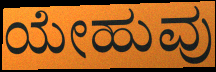
ಯೇಹುವು